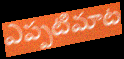
ఎప్పటిమాట